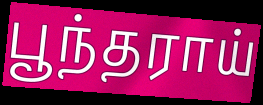
பூந்தராய்